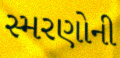
સ્મરણોની